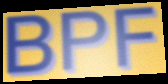
BPF